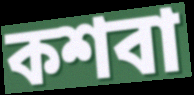
কশবা